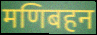
मणिबहन